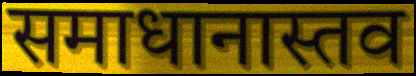
समाधानास्तव